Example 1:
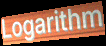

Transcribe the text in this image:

Logarithm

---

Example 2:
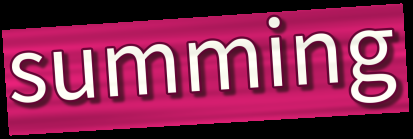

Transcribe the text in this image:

summing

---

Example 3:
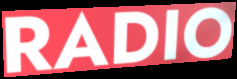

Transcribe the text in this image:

RADIO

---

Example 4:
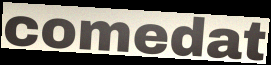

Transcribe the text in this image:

comedat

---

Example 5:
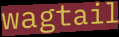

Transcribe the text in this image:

wagtail